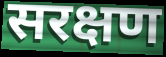
सरक्षण